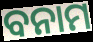
ବନାମ